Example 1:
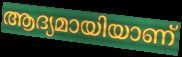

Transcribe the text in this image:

ആദ്യമായിയാണ്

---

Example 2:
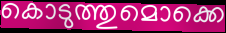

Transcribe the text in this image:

കൊടുത്തുമൊക്കെ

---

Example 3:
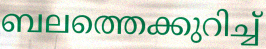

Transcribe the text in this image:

ബലത്തെക്കുറിച്ച്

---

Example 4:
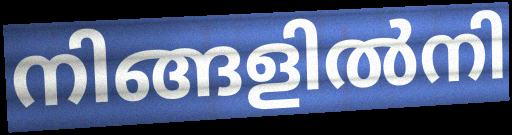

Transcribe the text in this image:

നിങ്ങളിൽനി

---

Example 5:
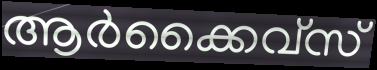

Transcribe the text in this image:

ആർക്കൈവ്സ്